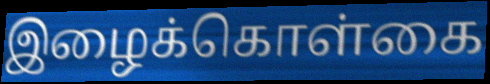
இழைக்கொள்கை